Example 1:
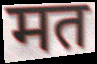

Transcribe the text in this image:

मत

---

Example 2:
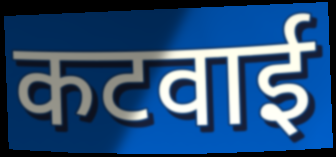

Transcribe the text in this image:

कटवाई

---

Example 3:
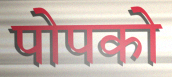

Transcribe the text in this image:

पोपको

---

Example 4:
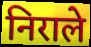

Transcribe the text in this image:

निराले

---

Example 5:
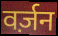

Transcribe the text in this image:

वर्ज़न